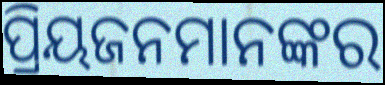
ପ୍ରିୟଜନମାନଙ୍କର